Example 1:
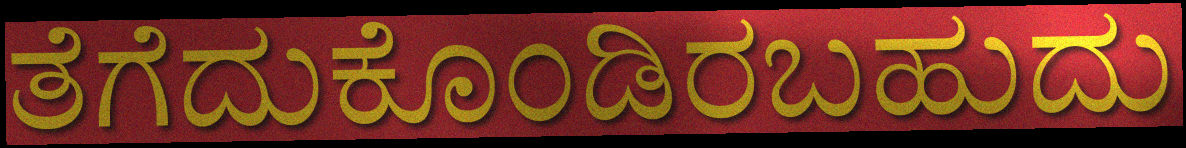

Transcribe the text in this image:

ತೆಗೆದುಕೊಂಡಿರಬಹುದು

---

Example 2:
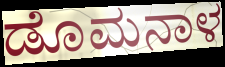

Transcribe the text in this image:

ಡೊಮನಾಳ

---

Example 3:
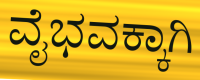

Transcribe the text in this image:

ವೈಭವಕ್ಕಾಗಿ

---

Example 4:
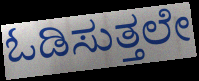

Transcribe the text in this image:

ಓಡಿಸುತ್ತಲೇ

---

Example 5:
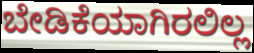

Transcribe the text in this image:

ಬೇಡಿಕೆಯಾಗಿರಲಿಲ್ಲ